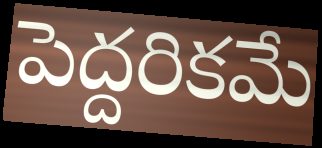
పెద్దరికమే